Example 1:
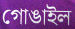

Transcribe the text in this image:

গোঙাইল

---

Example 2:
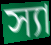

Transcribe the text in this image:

স্যা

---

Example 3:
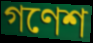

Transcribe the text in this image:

গণেশ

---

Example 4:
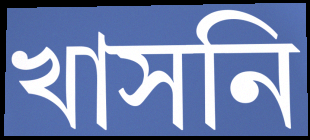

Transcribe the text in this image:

খাসনি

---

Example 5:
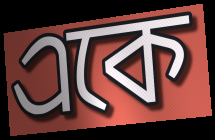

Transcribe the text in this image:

একে